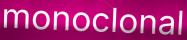
monoclonal